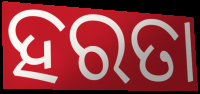
ହରତା